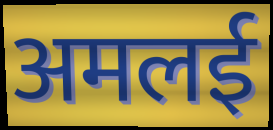
अमलई